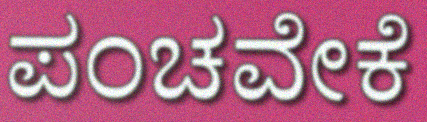
ಪಂಚವೇಕೆ